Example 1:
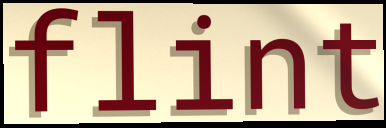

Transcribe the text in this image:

flint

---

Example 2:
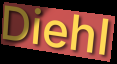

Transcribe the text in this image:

Diehl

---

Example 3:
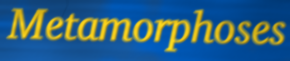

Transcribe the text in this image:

Metamorphoses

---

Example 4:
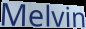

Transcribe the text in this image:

Melvin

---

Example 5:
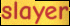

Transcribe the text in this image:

slayer